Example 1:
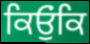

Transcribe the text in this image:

ਕਿਓੁਂਕਿ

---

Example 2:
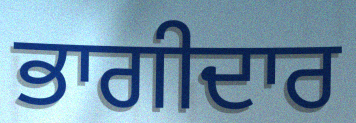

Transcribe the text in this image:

ਭਾਗੀਦਾਰ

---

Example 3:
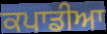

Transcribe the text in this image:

ਕਪਾਡੀਆ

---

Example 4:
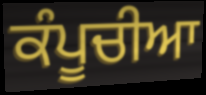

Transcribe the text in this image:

ਕੰਪੂਚੀਆ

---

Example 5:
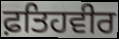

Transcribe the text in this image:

ਫ਼ਤਿਹਵੀਰ